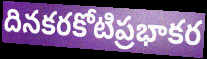
దినకరకోటిప్రభాకర